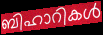
ബിഹാറികൾ